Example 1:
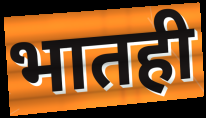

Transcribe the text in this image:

भातही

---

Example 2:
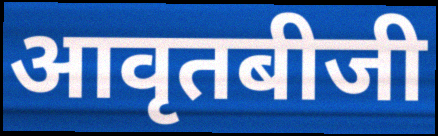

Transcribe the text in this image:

आवृतबीजी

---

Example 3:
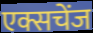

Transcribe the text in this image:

एक्सचेंज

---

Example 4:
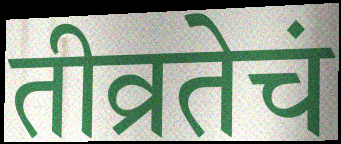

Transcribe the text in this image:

तीव्रतेचं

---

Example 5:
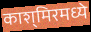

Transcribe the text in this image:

काश्मिरमध्ये